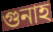
গুনাহ